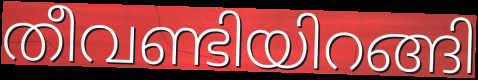
തീവണ്ടിയിറങ്ങി